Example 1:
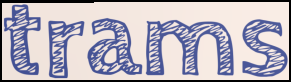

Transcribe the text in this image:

trams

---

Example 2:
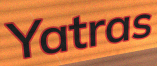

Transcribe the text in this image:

Yatras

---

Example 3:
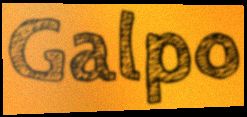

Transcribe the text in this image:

Galpo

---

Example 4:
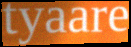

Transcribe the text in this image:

tyaare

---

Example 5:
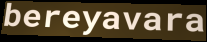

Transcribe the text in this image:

bereyavara